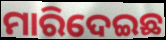
ମାରିଦେଇଛ